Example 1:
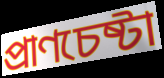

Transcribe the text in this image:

প্রাণচেষ্টা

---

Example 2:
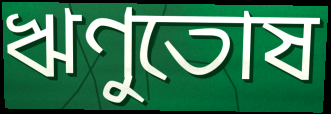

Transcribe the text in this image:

ঋণুতোষ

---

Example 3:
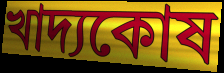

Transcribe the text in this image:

খাদ্যকোষ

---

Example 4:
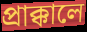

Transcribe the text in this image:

প্রাক্কালে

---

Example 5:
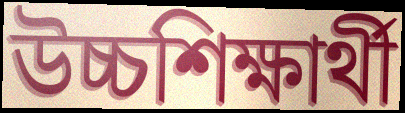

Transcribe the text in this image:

উচ্চশিক্ষার্থী